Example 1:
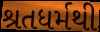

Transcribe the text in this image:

શ્રતધર્મથી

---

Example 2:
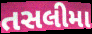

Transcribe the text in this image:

તસલીમા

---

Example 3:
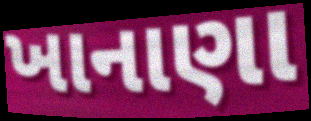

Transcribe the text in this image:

ખાનાણા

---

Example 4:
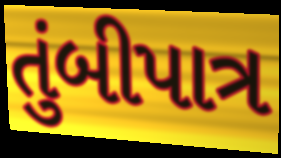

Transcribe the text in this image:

તુંબીપાત્ર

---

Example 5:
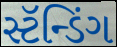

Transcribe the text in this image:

સ્ટૅન્ડિંગ